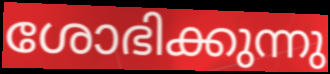
ശോഭിക്കുന്നു